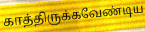
காத்திருக்கவேண்டிய